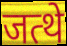
जत्थे